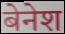
बेनेश